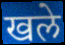
खले